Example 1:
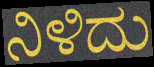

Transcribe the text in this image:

ನಿಳಿದು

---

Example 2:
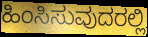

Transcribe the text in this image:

ಹಿಂಸಿಸುವುದರಲ್ಲಿ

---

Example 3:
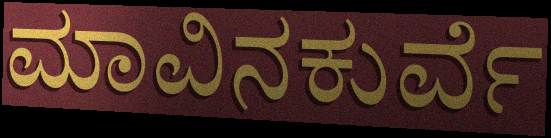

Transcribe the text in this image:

ಮಾವಿನಕುರ್ವೆ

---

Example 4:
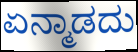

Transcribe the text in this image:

ಏನ್ಮಾಡದು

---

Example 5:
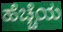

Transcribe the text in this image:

ಹೆಚ್ಚೆಯ